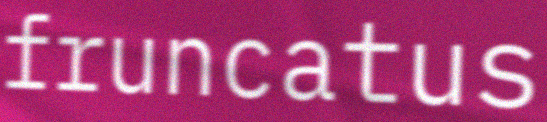
fruncatus